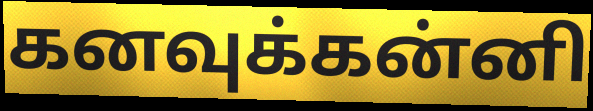
கனவுக்கன்னி